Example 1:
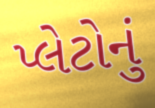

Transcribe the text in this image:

પ્લેટોનું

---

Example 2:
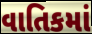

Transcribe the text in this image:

વાતિકમાં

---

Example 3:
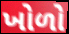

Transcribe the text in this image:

ખોળો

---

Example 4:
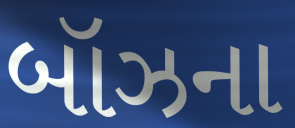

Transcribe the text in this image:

બૉઝના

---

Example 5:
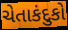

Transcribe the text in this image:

ચેતાકંદુકો